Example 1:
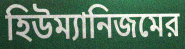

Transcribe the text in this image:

হিউম্যানিজমের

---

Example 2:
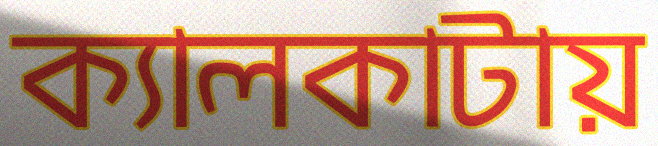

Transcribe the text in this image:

ক্যালকাটায়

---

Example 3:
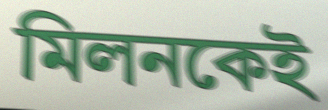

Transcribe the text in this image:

মিলনকেই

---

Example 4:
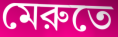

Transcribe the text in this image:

মেরুতে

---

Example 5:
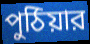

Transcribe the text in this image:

পুঠিয়ার